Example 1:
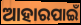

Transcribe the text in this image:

ଆହାରପାଇଁ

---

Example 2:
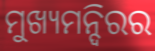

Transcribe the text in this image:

ମୁଖ୍ୟମନ୍ଦିରର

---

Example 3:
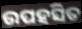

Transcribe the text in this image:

ଉପହସିତ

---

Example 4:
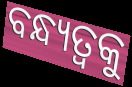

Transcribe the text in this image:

ବନ୍ଧ୍ୟତ୍ୱକୁ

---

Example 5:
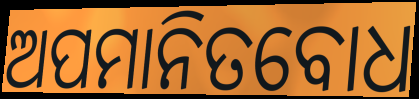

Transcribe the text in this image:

ଅପମାନିତବୋଧ